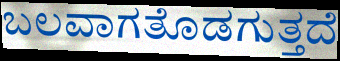
ಬಲವಾಗತೊಡಗುತ್ತದೆ